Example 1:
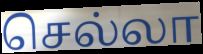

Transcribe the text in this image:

செல்லா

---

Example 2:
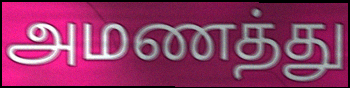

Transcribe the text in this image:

அமணத்து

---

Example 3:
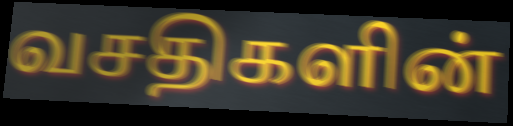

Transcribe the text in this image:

வசதிகளின்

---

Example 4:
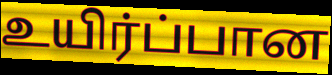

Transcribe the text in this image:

உயிர்ப்பான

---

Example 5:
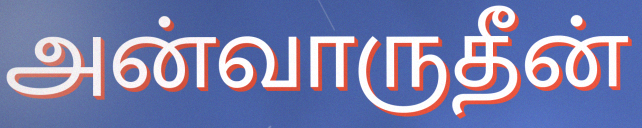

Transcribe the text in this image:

அன்வாருதீன்